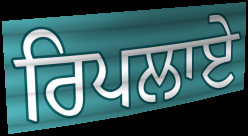
ਰਿਪਲਾਏ